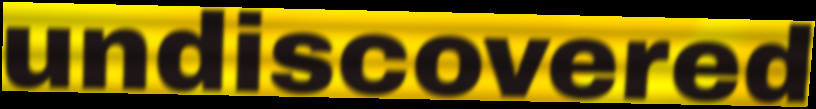
undiscovered